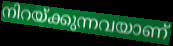
നിറയ്ക്കുന്നവയാണ്